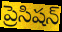
ప్రెసిషన్